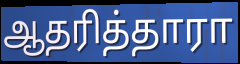
ஆதரித்தாரா